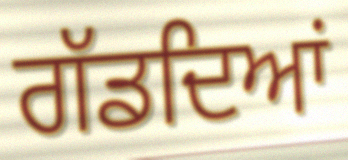
ਗੱਡਦਿਆਂ